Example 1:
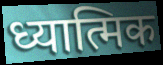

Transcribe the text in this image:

ध्यात्मिक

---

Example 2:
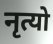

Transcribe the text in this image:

नृत्यो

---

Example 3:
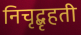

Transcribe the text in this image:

निचृद्बृहती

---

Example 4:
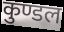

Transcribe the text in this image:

कुण्डल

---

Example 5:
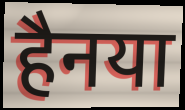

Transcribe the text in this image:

हैनया